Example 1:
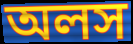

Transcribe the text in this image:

অলস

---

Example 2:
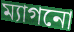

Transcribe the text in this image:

ম্যাগনো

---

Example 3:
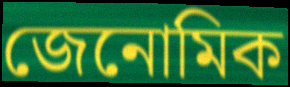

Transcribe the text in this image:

জেনোমিক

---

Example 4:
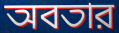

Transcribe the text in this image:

অবতার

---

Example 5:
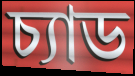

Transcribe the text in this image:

চ্যাড